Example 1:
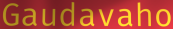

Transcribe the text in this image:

Gaudavaho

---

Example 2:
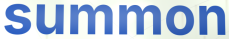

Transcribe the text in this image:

summon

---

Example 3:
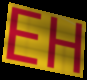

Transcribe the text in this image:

EH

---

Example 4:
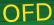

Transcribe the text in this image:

OFD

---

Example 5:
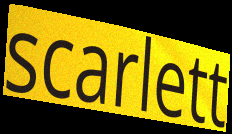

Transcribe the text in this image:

scarlett